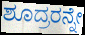
ಶೂದ್ರರನ್ನೇ